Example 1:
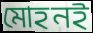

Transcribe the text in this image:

মোহনই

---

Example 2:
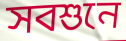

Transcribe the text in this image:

সবশুনে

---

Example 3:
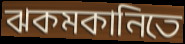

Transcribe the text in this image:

ঝকমকানিতে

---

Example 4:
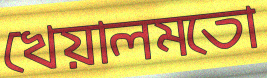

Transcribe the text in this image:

খেয়ালমতো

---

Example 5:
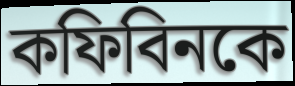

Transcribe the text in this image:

কফিবিনকে